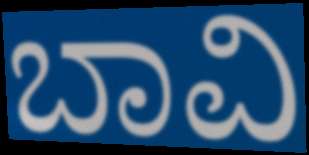
ಬಾವಿ